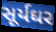
સૂર્યઘર